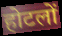
होटलों